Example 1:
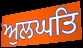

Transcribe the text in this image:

ਅੁਲਘਤਿ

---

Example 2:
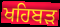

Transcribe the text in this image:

ਖਹਿਬੜ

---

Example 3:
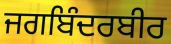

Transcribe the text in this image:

ਜਗਬਿੰਦਰਬੀਰ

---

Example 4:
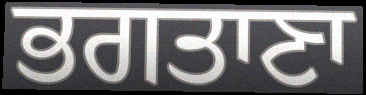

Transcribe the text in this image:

ਭਗਤਾਣਾ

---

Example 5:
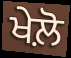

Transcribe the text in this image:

ਖੇਲ਼ੋ